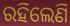
ରହିଲେଣି